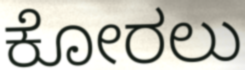
ಕೋರಲು